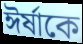
ঈর্ষাকে